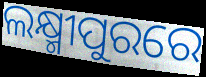
ଲକ୍ଷ୍ମୀପୁରରେ